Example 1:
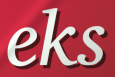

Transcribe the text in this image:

eks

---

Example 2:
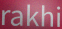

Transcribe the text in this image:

rakhi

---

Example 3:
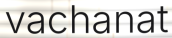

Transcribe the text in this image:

vachanat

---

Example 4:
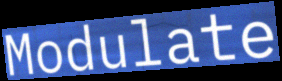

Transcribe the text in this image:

Modulate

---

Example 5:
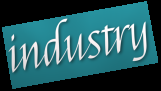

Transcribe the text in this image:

industry